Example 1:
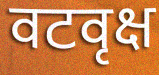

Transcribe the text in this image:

वटवृक्ष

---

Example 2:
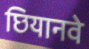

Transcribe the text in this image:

छियानवे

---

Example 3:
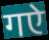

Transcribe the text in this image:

गऐ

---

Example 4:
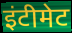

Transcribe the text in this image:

इंटीमेट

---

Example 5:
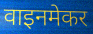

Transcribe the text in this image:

वाइनमेकर